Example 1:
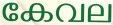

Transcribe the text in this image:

കേവല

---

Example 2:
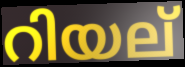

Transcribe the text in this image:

റിയല്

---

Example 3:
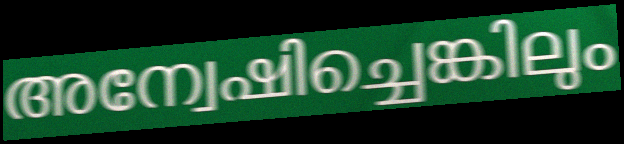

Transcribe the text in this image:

അന്വേഷിച്ചെങ്കിലും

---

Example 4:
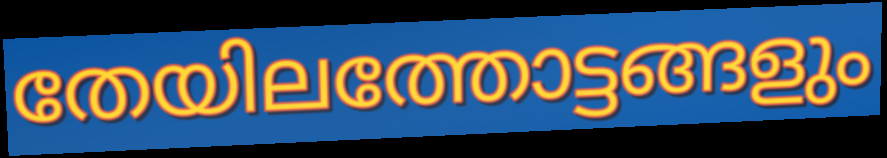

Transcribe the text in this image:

തേയിലത്തോട്ടങ്ങളും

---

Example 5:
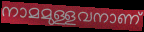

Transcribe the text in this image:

നാമമുള്ളവനാണ്